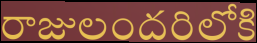
రాజులందరిలోకి